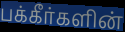
பக்கீர்களின்